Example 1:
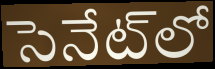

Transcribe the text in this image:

సెనేట్‌లో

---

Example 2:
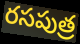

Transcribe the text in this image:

రసపుత్ర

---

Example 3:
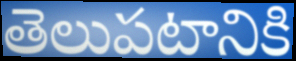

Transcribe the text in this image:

తెలుపటానికి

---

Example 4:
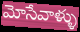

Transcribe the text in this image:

మోసేవాళ్ళు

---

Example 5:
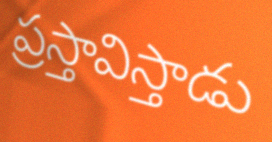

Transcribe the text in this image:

ప్రస్తావిస్తాడు